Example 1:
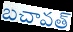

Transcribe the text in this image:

బచావత్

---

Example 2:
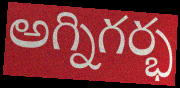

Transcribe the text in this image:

అగ్నిగర్భ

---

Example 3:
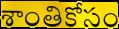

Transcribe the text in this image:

శాంతికోసం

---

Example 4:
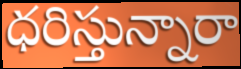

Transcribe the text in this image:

ధరిస్తున్నారా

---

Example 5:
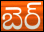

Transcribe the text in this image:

బెర్